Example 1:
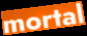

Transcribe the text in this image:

mortal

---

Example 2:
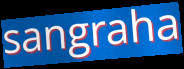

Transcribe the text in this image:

sangraha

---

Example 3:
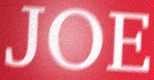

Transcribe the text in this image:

JOE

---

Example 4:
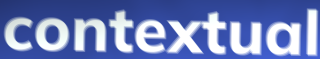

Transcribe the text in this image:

contextual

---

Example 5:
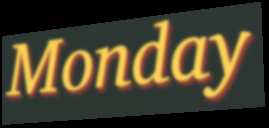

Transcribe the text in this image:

Monday